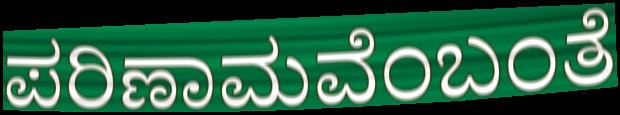
ಪರಿಣಾಮವೆಂಬಂತೆ